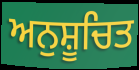
ਅਨੁਸ਼ੂਚਿਤ